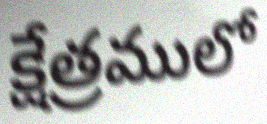
క్షేత్రములో